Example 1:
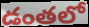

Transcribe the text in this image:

డంతలో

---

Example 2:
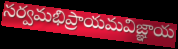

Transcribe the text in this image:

సర్వమభిప్రాయమవిజ్ఞాయ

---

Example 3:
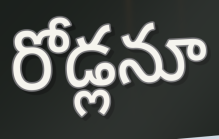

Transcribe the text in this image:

రోడ్లనూ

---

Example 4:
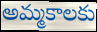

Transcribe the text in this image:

అమ్మకాలకు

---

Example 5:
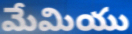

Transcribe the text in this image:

మేమియు